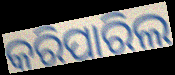
କରିପାରିଲ